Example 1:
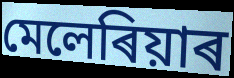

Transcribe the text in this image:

মেলেৰিয়াৰ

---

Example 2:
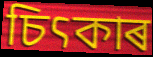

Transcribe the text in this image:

চিৎকাৰ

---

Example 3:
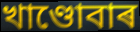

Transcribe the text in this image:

খাণ্ডোবাৰ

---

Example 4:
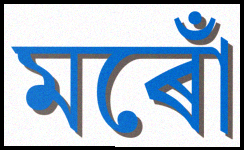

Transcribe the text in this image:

মৰোঁ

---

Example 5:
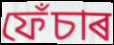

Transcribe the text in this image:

ফেঁচাৰ